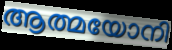
ആത്മയോനി